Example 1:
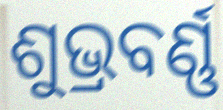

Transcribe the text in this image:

ଶୁଭ୍ରବର୍ଣ୍ଣ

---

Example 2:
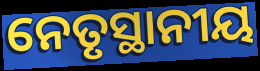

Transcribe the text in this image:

ନେତୃସ୍ଥାନୀୟ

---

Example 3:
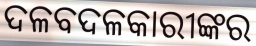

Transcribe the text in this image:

ଦଳବଦଳକାରୀଙ୍କର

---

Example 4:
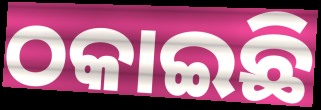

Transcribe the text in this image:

ଠକାଇଛି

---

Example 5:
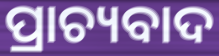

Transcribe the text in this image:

ପ୍ରାଚ୍ୟବାଦ